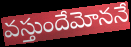
వస్తుందేమోననే